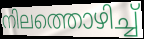
നിലത്തൊഴിച്ച്